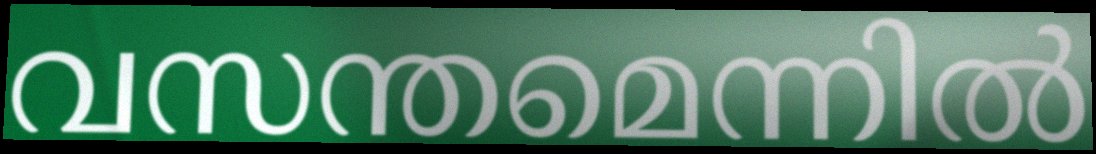
വസന്തമെന്നിൽ